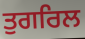
ਤੁਗਰਿਲ